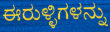
ಈರುಳ್ಳಿಗಳನ್ನು